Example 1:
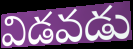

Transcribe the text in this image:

విడవడు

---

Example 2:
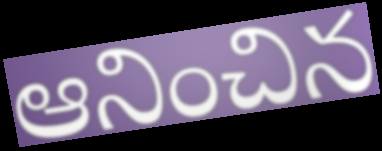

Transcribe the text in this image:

ఆనించిన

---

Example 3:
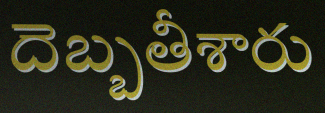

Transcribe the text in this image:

దెబ్బతీశారు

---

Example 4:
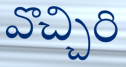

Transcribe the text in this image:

వొచ్చిరి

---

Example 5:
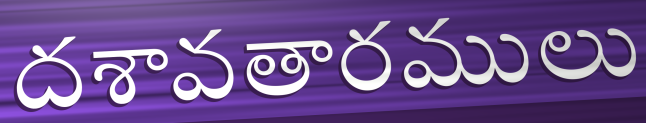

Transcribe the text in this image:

దశావతారములు